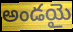
అండయై